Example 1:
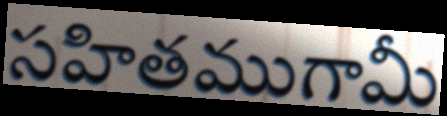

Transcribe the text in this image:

సహితముగామీ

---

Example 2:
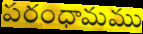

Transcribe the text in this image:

పరంధామము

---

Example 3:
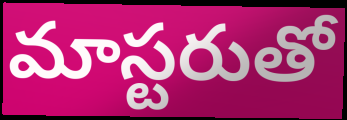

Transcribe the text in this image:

మాస్టరుతో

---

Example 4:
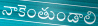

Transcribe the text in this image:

నాకెంతుండాలి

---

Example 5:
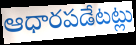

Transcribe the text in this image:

ఆధారపడేటట్లు